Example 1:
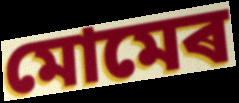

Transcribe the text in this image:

মোমেৰ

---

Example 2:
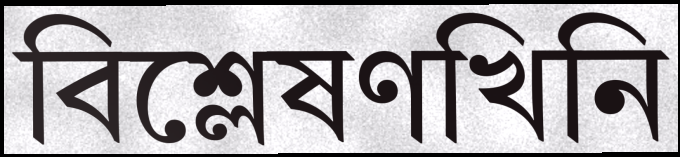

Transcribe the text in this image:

বিশ্লেষণখিনি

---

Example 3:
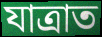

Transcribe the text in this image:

যাত্ৰাত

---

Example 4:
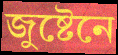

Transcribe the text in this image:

জুষ্টেনে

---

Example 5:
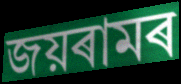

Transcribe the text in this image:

জয়ৰামৰ